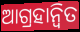
ଆଗ୍ରହାନ୍ୱିତ